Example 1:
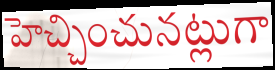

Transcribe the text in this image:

హెచ్చించునట్లుగా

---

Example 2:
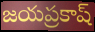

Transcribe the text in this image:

జయప్రకాష్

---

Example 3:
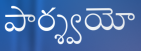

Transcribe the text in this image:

పార్శ్వయో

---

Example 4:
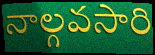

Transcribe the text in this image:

నాల్గవసారి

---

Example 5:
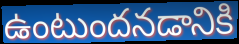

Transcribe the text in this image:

ఉంటుందనడానికి